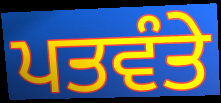
ਪਤਵੰਤੇ